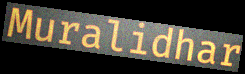
Muralidhar